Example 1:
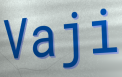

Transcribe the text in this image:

Vaji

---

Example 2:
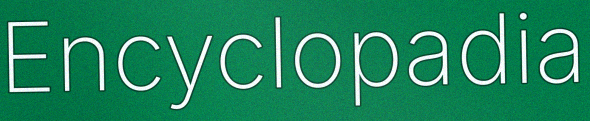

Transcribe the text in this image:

Encyclopadia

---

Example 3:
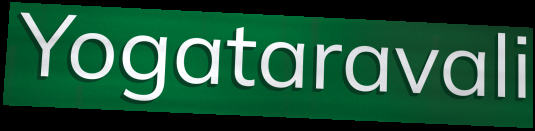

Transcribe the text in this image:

Yogataravali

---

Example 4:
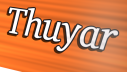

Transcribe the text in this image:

Thuyar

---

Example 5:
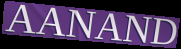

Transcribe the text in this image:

AANAND